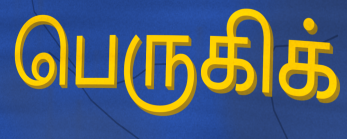
பெருகிக்